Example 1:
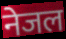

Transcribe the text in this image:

नेजल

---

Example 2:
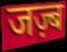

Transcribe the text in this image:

जज़्ब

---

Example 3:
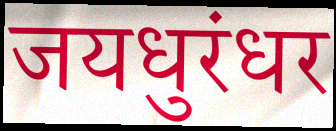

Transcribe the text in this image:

जयधुरंधर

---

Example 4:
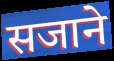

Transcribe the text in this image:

सजाने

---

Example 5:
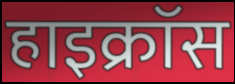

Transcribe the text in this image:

हाइक्रॉस